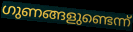
ഗുണങ്ങളുണ്ടെന്ന്